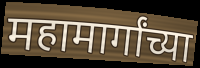
महामार्गांच्या